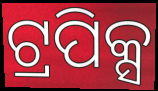
ଟ୍ରପିକ୍ସ